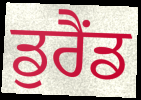
ਡੁਰੈਂਡ